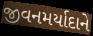
જીવનમર્યાદાને